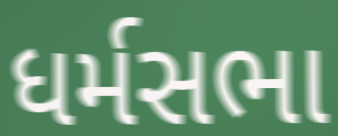
ધર્મસભા